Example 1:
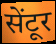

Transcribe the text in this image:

सेंटूर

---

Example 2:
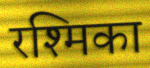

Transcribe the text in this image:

रश्मिका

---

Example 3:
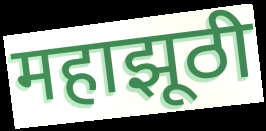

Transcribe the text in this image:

महाझूठी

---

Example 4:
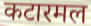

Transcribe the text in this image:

कटारमल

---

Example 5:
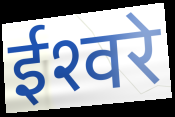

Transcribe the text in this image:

ईश्वरे